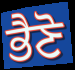
ਭੈਣੋ